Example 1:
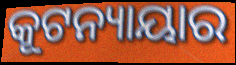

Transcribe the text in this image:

କୂଟନ୍ୟାୟାର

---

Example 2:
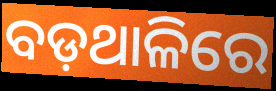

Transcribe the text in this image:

ବଡ଼ଥାଳିରେ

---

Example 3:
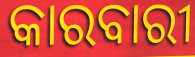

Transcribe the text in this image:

କାରବାରୀ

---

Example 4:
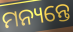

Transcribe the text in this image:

ମନ୍ୟନ୍ତେ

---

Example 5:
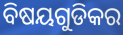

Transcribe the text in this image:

ବିଷୟଗୁଡିକର